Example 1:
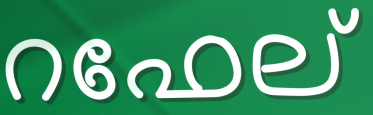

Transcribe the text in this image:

റഫേല്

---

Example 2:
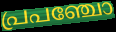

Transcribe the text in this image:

പ്രപഞ്ചോ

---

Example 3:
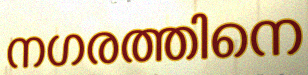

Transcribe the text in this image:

നഗരത്തിനെ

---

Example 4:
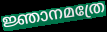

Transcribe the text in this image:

ജ്ഞാനമത്രേ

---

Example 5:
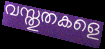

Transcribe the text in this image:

വസ്തുതകളെ